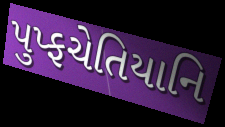
પુપ્ફચેતિયાનિ